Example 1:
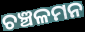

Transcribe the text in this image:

ଚଞ୍ଚଳମନ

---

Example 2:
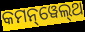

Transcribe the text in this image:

କମନ୍‌ୱେଲ୍‌ଥ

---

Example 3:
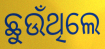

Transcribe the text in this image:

ଛୁଉଁଥିଲେ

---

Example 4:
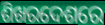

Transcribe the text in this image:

ଶିଖରଦେଶରେ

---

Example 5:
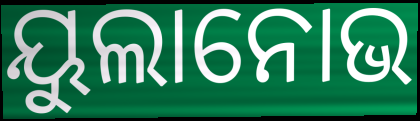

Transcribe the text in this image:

ୟୁଲାନୋଭ